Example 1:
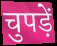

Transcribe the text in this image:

चुपड़ें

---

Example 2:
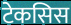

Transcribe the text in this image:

टेकसिस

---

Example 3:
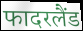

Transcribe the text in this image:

फादरलैंड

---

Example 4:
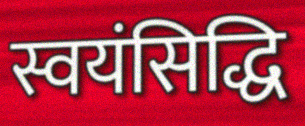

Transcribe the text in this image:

स्वयंसिद्धि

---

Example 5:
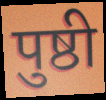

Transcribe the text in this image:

पुष्ठी